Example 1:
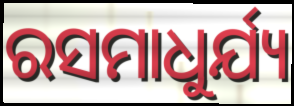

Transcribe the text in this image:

ରସମାଧୁର୍ଯ୍ୟ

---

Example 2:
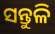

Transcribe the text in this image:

ସନ୍ତୁଳି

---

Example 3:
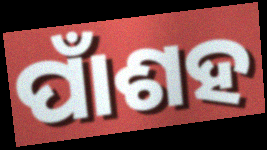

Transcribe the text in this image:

ପାଁଶହ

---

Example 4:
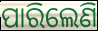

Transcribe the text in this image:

ପାରିଲେଣି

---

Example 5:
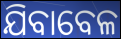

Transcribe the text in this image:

ଯିବାବେଳ